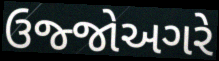
ઉજ્જોઅગરે